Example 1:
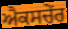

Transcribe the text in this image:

ਐਕਸਚੇਂਰ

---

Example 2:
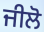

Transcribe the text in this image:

ਜੀਲੋ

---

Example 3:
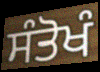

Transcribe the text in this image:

ਸੰਤੋਖੰ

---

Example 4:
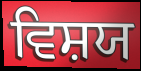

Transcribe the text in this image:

ਵਿਸ਼ਯ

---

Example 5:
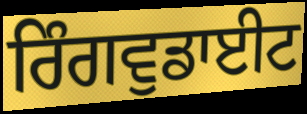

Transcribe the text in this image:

ਰਿੰਗਵੁਡਾਈਟ